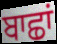
ਬਾਛਾਂ